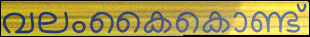
വലംകൈകൊണ്ട്